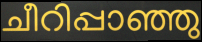
ചീറിപ്പാഞ്ഞു